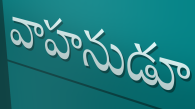
వాహనుడూ